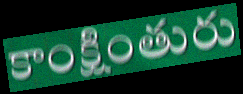
కాంక్షింతురు